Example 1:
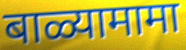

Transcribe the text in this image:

बाळ्यामामा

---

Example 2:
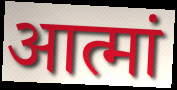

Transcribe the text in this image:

आत्मां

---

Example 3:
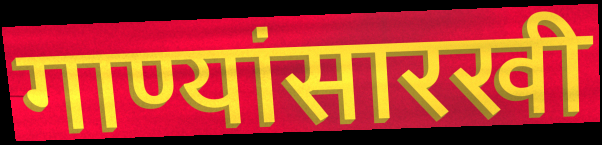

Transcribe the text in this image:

गाण्यांसारखी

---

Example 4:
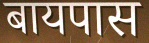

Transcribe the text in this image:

बायपास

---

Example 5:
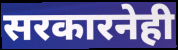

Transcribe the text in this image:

सरकारनेही